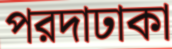
পরদাঢাকা